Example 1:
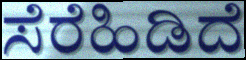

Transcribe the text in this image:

ಸೆರೆಹಿಡಿದೆ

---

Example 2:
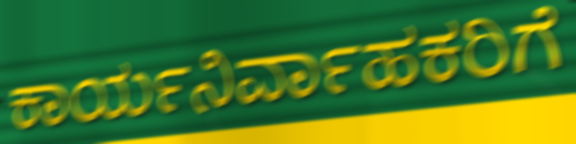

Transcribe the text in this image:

ಕಾರ್ಯನಿರ್ವಾಹಕರಿಗೆ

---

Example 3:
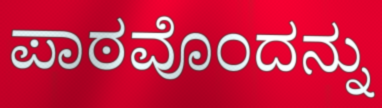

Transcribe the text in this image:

ಪಾಠವೊಂದನ್ನು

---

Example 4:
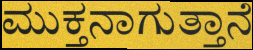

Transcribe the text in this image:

ಮುಕ್ತನಾಗುತ್ತಾನೆ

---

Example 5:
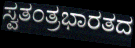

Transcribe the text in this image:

ಸ್ವತಂತ್ರಭಾರತದ